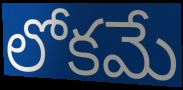
లోకమే